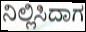
ನಿಲ್ಲಿಸಿದಾಗ